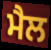
ਮੈਲ